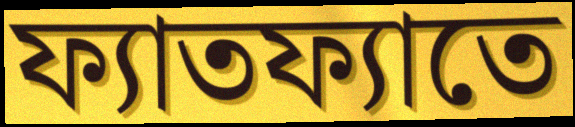
ফ্যাতফ্যাতে